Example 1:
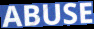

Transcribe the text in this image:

ABUSE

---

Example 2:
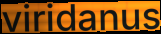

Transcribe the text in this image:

viridanus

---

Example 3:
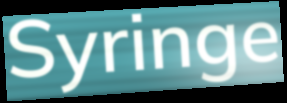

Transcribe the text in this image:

Syringe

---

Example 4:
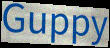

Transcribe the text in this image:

Guppy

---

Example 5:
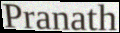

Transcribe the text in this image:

Pranath